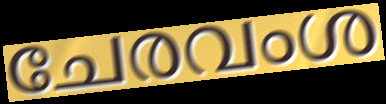
ചേരവംശ